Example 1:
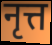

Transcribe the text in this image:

नृत्त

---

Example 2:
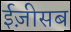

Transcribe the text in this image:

ईज़ीसब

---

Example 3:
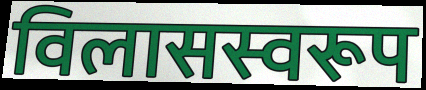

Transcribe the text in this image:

विलासस्वरूप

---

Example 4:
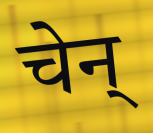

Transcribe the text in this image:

चेन्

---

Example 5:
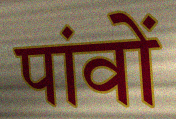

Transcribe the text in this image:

पांवों